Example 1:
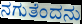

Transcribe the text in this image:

ನಗುತೆಂದನು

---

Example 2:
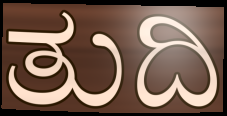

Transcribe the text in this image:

ತುದಿ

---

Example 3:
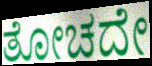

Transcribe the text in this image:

ತೋಚದೇ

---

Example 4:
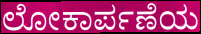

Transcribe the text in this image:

ಲೋಕಾರ್ಪಣೆಯ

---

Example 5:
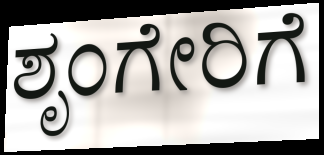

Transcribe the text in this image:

ಶೃಂಗೇರಿಗೆ